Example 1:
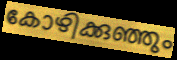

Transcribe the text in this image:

കോഴിക്കുഞ്ഞും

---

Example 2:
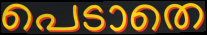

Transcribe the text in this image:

പെടാതെ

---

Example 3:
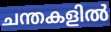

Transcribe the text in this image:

ചന്തകളിൽ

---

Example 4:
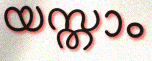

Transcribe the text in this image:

യസ്താം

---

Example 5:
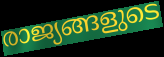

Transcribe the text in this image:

രാജ്യങ്ങളുടെ